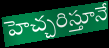
హెచ్చరిస్తూనే